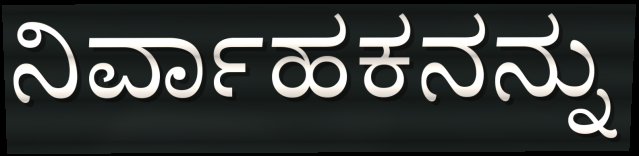
ನಿರ್ವಾಹಕನನ್ನು